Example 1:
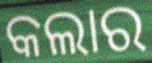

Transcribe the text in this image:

କଲାର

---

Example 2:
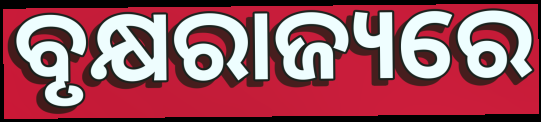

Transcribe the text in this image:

ବୃକ୍ଷରାଜ୍ୟରେ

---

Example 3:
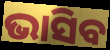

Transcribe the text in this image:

ଭାସିବ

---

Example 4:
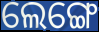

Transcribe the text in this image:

ଲେଙ୍ଗେ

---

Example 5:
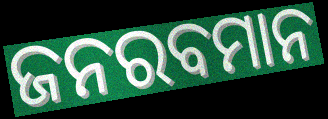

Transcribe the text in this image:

ଜନରବମାନ